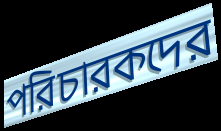
পরিচারকদের